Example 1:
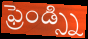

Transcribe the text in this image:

ఫ్రెండ్స్ని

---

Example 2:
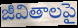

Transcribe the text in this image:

జీవితాలపై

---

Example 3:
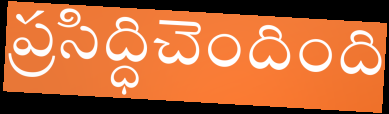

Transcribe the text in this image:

ప్రసిద్ధిచెందింది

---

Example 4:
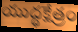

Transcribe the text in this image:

యుద్ధక్షేత్రం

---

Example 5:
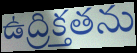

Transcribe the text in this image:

ఉద్రిక్తతను